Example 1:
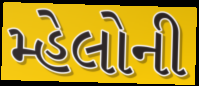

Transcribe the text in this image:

મ્હેલોની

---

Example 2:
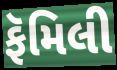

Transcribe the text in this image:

ફૅમિલી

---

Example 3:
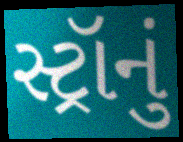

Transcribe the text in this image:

સ્ટ્રૉનું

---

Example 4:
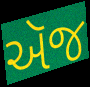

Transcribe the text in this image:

ઍજ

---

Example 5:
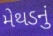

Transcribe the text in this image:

મેથડનું